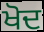
ਖੋਦ